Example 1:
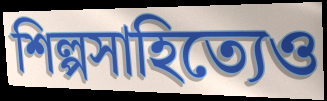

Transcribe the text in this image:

শিল্পসাহিত্যেও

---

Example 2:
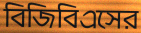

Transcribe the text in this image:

বিজিবিএসের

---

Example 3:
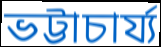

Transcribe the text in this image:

ভট্টাচার্য্য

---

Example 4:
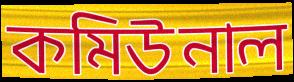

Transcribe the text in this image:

কমিউনাল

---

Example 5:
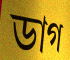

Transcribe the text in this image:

ডাগ